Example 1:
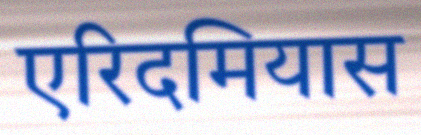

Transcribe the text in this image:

एरिदमियास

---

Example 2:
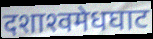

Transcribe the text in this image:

दशाश्वमेधघाट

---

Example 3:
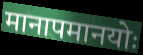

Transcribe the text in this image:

मानापमानयोः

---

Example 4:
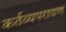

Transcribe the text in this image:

कर्तव्यपरायण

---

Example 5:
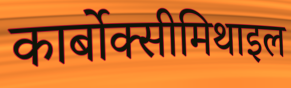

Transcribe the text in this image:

कार्बोक्सीमिथाइल